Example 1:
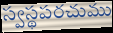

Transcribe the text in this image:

స్వస్థపరచుము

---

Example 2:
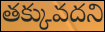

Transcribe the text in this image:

తక్కువదని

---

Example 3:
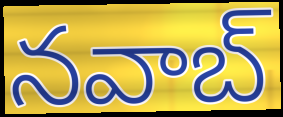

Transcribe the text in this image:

నవాబ్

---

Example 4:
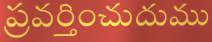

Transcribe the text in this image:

ప్రవర్తించుదుము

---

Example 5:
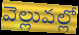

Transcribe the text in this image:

వెల్లువల్లో